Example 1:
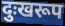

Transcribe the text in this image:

दुःखरूप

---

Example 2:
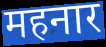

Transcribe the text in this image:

महनार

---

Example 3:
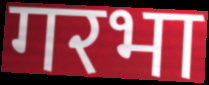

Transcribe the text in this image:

गरभा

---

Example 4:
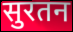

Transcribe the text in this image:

सुरतन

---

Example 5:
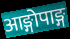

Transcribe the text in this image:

आङ्गोपाङ्ग